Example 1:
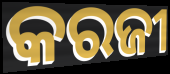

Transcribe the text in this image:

କରଜୀ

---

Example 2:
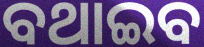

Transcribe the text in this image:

ବଥାଇବ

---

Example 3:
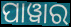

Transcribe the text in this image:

ପାୱାର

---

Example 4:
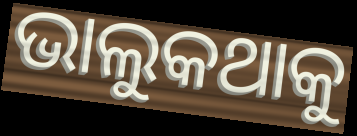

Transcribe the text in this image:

ଭାଲୁକଥାକୁ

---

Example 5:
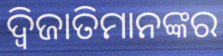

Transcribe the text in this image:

ଦ୍ୱିଜାତିମାନଙ୍କର